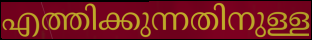
എത്തിക്കുന്നതിനുള്ള